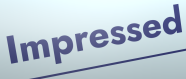
Impressed